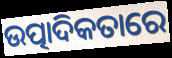
ଉତ୍ପାଦିକତାରେ